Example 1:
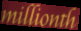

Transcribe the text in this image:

millionth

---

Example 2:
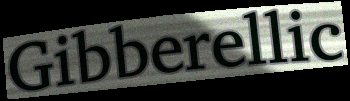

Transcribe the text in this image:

Gibberellic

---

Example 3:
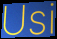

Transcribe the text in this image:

Usi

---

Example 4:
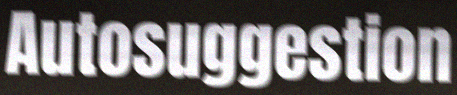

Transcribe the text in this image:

Autosuggestion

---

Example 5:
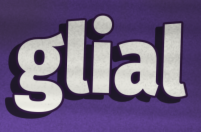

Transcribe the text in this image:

glial